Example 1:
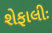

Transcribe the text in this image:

શેફાલીઃ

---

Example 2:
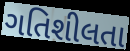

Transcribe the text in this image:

ગતિશીલતા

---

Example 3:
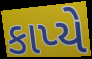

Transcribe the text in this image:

કાપ્યે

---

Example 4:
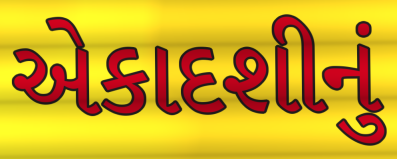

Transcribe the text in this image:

એકાદશીનું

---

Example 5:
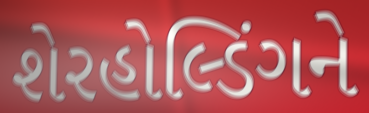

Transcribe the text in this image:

શેરહોલ્ડિંગને